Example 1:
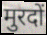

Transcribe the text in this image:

मुरदों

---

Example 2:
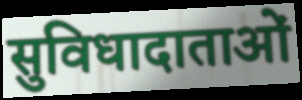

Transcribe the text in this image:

सुविधादाताओं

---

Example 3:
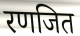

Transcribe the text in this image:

रणजित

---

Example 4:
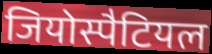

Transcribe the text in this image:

जियोस्पैटियल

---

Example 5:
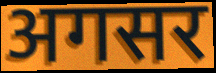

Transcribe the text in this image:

अगसर